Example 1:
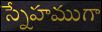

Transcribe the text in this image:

స్నేహముగా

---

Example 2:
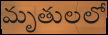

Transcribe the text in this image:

మృతులలో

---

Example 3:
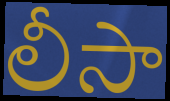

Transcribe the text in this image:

లీసా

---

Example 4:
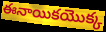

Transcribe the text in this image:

ఈనాయికయొక్క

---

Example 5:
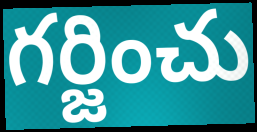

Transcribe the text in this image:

గర్జించు